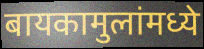
बायकामुलांमध्ये